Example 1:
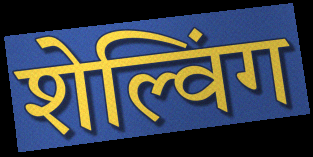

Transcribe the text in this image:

शेल्विंग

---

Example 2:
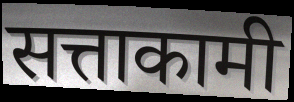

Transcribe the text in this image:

सत्ताकामी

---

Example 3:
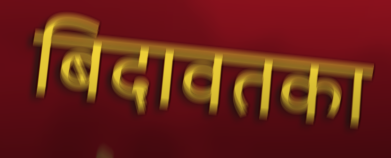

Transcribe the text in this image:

बिदावतका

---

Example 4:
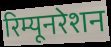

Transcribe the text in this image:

रिम्यूनरेशन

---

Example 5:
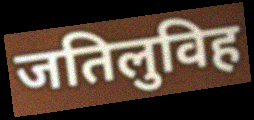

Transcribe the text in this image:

जतिलुविह